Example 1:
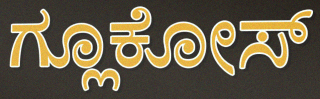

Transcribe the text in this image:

ಗ್ಲೂಕೋಸ್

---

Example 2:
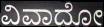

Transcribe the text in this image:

ವಿವಾದೋ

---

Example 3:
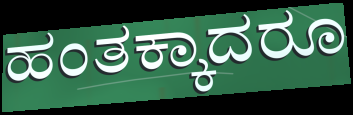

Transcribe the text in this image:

ಹಂತಕ್ಕಾದರೂ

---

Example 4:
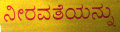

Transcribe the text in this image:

ನೀರವತೆಯನ್ನು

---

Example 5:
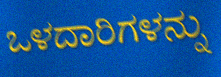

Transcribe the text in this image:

ಒಳದಾರಿಗಳನ್ನು